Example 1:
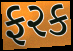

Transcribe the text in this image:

ફરક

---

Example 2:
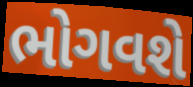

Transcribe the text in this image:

ભોગવશે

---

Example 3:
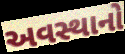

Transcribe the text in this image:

અવસ્થાનો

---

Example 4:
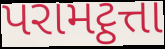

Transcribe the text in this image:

પરામટ્ઠત્તા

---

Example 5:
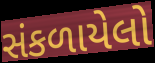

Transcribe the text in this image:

સંકળાયેલો